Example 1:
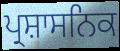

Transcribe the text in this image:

ਪ੍ਰਸ਼ਾਸਨਿਕ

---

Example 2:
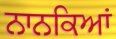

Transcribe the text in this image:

ਨਾਨਕਿਆਂ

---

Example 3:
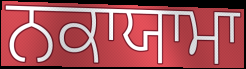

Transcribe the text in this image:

ਨਕਾਯਾਮਾ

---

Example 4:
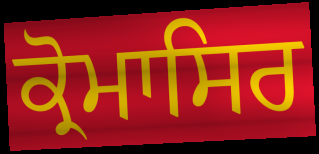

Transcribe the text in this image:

ਕ੍ਰੋਮਾਸਿਰ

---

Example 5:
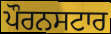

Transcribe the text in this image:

ਪੌਰਨਸਟਾਰ